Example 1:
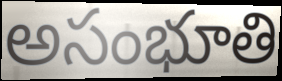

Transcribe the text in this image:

అసంభూతి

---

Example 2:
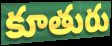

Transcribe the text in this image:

కూతురు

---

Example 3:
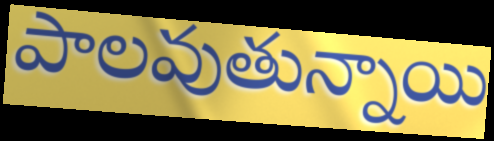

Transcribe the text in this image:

పాలవుతున్నాయి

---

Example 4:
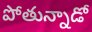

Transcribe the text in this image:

పోతున్నాడో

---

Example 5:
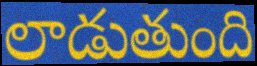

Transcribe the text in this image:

లాడుతుంది